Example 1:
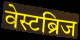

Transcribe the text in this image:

वेस्टब्रिज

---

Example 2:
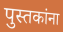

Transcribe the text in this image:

पुस्तकांना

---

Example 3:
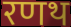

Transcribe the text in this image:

रणथ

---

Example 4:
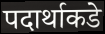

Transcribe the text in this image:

पदार्थाकडे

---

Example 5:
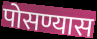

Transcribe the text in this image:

पोसण्यास